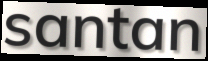
santan